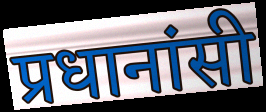
प्रधानांसी